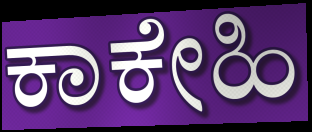
ಕಾಕೇಹಿ